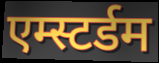
एम्स्टर्डम